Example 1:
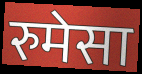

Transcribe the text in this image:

रुमेसा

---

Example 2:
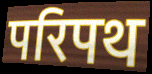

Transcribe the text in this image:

परिपथ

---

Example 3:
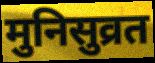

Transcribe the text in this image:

मुनिसुव्रत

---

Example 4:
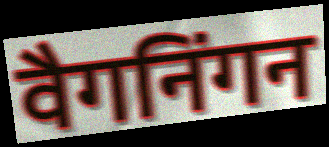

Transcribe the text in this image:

वैगनिंगन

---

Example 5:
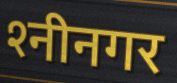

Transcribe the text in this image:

श्नीनगर